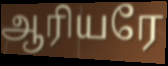
ஆரியரே